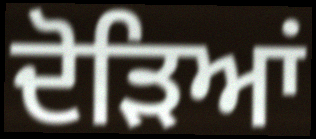
ਦੋੜਿਆਂ